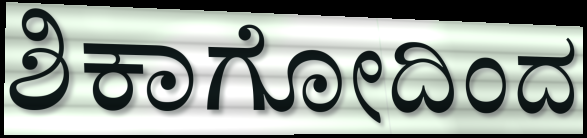
ಶಿಕಾಗೋದಿಂದ